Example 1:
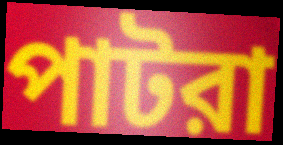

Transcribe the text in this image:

পাটরা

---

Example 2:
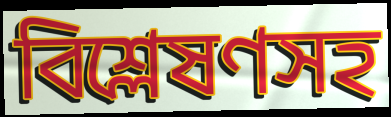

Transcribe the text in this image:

বিশ্লেষণসহ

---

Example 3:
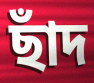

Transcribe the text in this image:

ছাঁদ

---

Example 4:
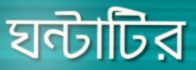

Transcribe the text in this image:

ঘন্টাটির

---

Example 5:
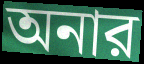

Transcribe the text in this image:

অনার